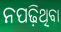
ନପଢ଼ିଥିବା